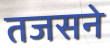
तजसने